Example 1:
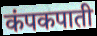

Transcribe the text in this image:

कंपकपाती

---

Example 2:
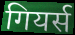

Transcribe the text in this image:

गियर्स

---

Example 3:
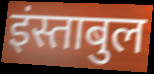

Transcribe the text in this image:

इंस्ताबुल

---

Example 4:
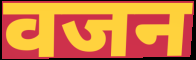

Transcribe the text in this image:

वजन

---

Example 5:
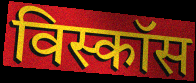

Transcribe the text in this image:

विस्कॉस